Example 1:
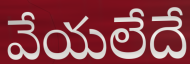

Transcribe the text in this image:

వేయలేదే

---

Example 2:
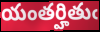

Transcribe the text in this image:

యంతర్హితుఁ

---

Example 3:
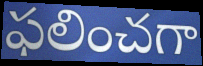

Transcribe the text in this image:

ఫలించగా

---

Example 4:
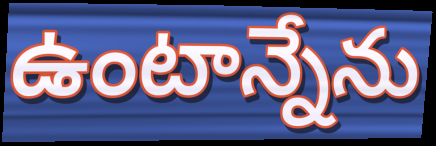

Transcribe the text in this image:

ఉంటాన్నేను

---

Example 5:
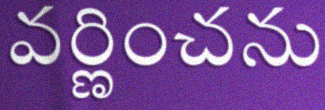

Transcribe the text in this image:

వర్ణించను